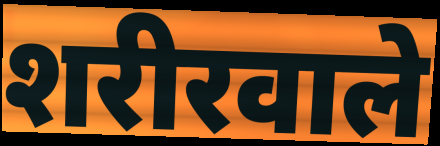
शरीरवाले